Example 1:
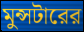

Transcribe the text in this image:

মুন্সটারের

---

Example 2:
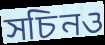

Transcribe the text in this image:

সচিনও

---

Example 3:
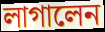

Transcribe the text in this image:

লাগালেন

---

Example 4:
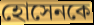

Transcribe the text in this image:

হোসেনকে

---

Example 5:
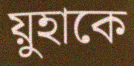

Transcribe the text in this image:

য়ুহাকে